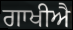
ਗਾਖੀਐ